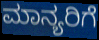
ಮಾನ್ಯರಿಗೆ